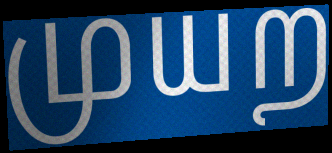
முயற